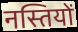
नस्तियों